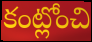
కంట్లోంచి